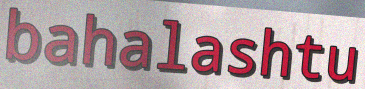
bahalashtu